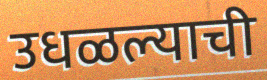
उधळल्याची